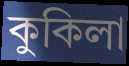
কুকিলা